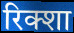
रिक्शा